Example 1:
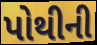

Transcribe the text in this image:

પોથીની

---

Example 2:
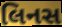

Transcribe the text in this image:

લિનસ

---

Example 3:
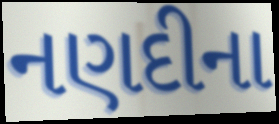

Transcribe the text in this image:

નણદીના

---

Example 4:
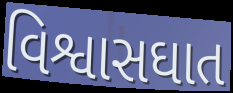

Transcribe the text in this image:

વિશ્વાસઘાત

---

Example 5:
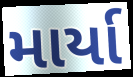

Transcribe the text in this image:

માર્યા